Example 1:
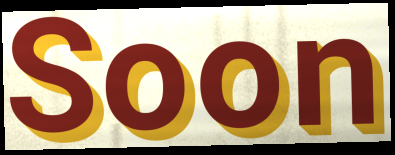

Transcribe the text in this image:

Soon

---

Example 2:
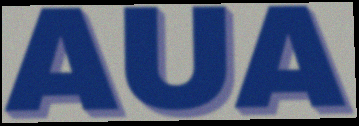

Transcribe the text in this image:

AUA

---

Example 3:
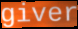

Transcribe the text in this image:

giver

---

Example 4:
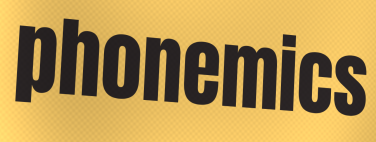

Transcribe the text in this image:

phonemics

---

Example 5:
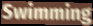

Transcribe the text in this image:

Swimming